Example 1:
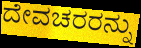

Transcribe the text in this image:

ದೇವಚರರನ್ನು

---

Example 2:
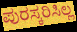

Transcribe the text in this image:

ಪುರಸ್ಕರಿಸಿಲ್ಲ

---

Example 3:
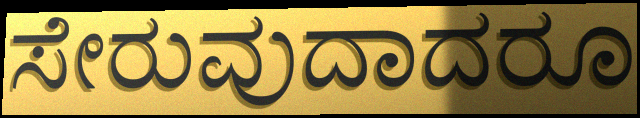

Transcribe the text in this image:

ಸೇರುವುದಾದರೂ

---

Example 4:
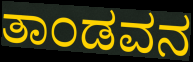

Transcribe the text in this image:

ತಾಂಡವನ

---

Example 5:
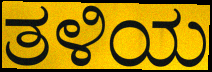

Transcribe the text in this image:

ತಳಿಯ